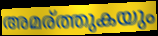
അമര്ത്തുകയും